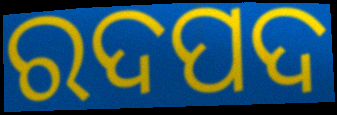
ରଦପଦ